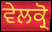
ਵੇਲਕ੍ਰੋ